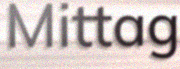
Mittag